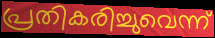
പ്രതികരിച്ചുവെന്ന്